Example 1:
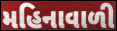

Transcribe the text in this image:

મહિનાવાળી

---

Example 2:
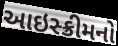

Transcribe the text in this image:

આઇસ્ક્રીમનો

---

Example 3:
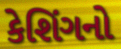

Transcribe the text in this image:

કેશિંગનો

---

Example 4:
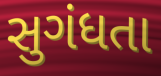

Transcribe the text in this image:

સુગંધતા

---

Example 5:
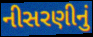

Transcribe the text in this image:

નીસરણીનું